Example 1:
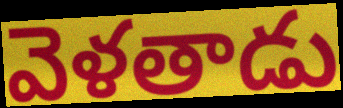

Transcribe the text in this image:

వెళతాడు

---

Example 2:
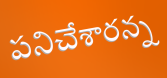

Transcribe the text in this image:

పనిచేశారన్న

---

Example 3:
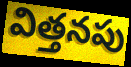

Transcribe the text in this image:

విత్తనపు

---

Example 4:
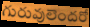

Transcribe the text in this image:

గురువులెందరో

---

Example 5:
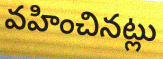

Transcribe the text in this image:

వహించినట్లు